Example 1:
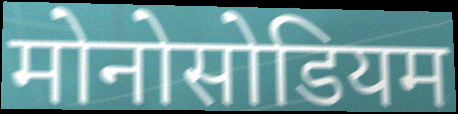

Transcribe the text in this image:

मोनोसोडियम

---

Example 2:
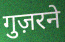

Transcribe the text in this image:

गुज़रने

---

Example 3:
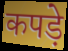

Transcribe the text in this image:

कपड़े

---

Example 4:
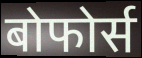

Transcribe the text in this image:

बोफोर्स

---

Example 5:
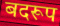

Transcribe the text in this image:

बदरूप